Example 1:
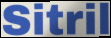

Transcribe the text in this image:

Sitril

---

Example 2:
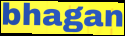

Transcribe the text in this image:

bhagan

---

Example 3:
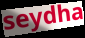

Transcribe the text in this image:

seydha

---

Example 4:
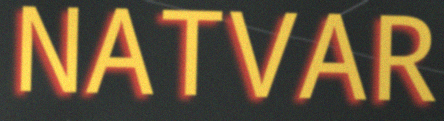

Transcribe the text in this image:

NATVAR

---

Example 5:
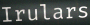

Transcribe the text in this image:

Irulars